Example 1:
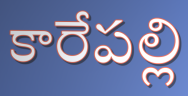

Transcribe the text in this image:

కారేపల్లి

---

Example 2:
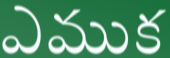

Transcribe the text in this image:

ఎముక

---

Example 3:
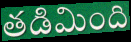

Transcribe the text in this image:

తడిమింది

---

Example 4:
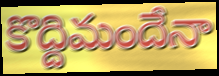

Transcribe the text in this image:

కొద్దిమందేనా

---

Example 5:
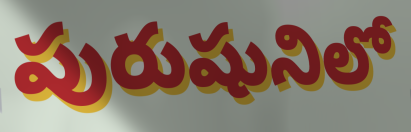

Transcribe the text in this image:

పురుషునిలో